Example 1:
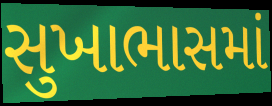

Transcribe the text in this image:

સુખાભાસમાં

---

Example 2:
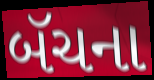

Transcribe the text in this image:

બૅચના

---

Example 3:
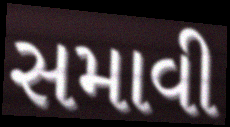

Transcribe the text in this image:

સમાવી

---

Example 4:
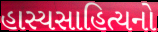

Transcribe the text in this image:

હાસ્યસાહિત્યનો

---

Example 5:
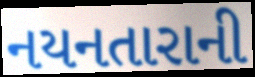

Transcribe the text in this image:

નયનતારાની